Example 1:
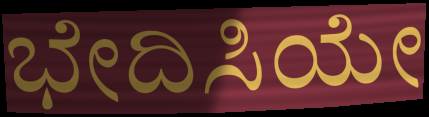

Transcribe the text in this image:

ಭೇದಿಸಿಯೇ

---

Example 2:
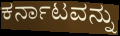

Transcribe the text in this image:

ಕರ್ನಾಟವನ್ನು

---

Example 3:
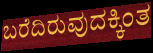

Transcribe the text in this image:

ಬರೆದಿರುವುದಕ್ಕಿಂತ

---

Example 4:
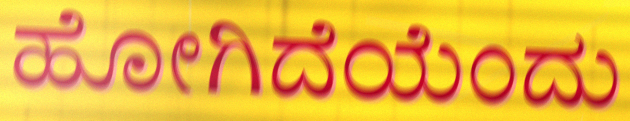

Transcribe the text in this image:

ಹೋಗಿದೆಯೆಂದು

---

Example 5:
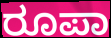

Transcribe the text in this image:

ರೂಪಾ